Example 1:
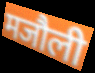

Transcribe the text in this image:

मजौली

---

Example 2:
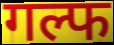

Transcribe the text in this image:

गल्फ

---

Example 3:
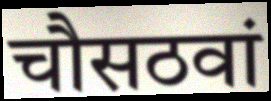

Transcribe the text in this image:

चौसठवां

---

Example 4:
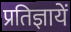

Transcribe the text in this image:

प्रतिज्ञायें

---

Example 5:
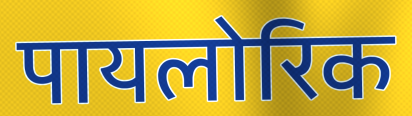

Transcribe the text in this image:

पायलोरिक